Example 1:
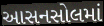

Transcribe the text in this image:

આસનસોલમાં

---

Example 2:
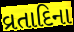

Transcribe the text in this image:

વ્રતાદિના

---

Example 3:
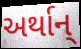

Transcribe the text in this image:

અર્થાન્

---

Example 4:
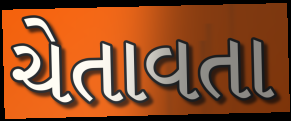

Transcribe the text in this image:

ચેતાવતા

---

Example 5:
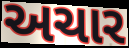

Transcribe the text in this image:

અચાર